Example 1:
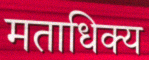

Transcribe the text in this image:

मताधिक्य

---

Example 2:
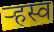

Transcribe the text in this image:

ऱ्हस्व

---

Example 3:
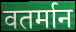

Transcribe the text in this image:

वतर्मान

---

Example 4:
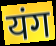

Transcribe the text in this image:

यंग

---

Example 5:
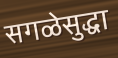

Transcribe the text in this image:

सगळेसुद्धा